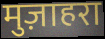
मुज़ाहरा